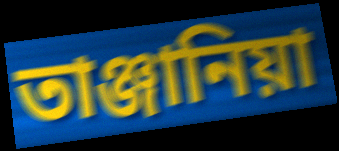
তাঞ্জানিয়া